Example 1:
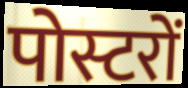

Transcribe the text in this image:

पोस्‍टरों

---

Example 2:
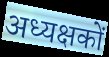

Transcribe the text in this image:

अध्यक्षकों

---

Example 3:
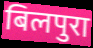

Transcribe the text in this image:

बिलपुरा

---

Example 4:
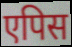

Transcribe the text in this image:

एपिस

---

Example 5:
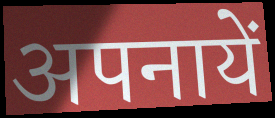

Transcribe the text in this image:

अपनायें